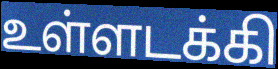
உள்ளடக்கி